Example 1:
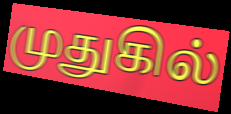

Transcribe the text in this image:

முதுகில்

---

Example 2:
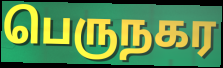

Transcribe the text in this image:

பெருநகர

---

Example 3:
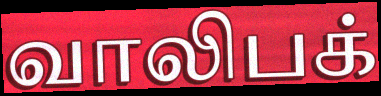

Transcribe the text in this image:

வாலிபக்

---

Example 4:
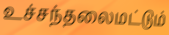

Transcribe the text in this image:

உச்சந்தலைமட்டும்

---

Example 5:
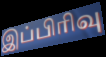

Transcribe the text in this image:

இப்பிரிவு